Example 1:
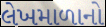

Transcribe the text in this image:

લેખમાળાનો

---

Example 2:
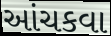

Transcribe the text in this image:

આંચકવા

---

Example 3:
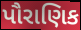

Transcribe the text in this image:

પૌરાણિક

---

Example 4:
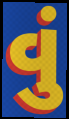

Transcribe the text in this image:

વું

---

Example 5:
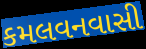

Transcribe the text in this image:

કમલવનવાસી